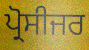
ਪ੍ਰੋਸੀਜਰ